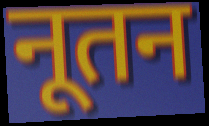
नूतन